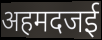
अहमदजई